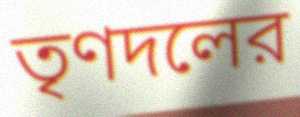
তৃণদলের